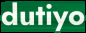
dutiyo